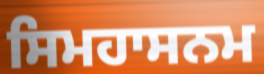
ਸਿਮਹਾਸਨਮ